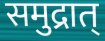
समुद्रात्